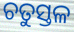
ଚତୁସ୍ତଳ